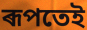
ৰূপতেই